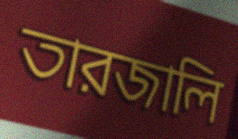
তারজালি